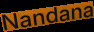
Nandana